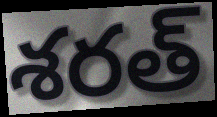
శరత్